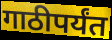
गाठीपर्यंत